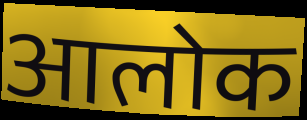
आलोक